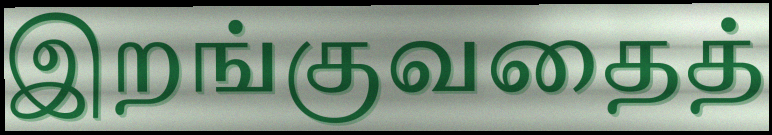
இறங்குவதைத்